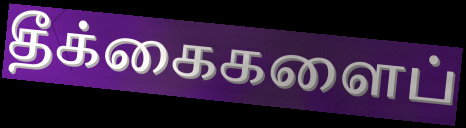
தீக்கைகளைப்